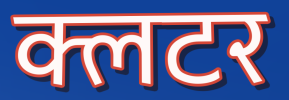
क्लटर